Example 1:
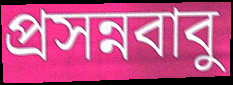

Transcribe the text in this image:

প্রসন্নবাবু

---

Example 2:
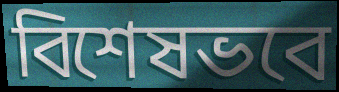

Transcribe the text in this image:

বিশেষভবে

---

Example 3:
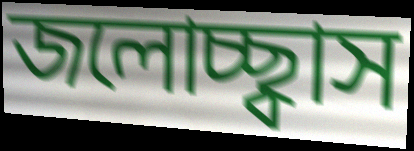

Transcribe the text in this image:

জলোচ্ছ্বাস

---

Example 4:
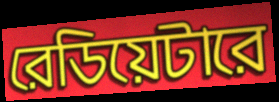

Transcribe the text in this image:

রেডিয়েটারে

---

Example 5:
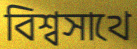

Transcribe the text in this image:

বিশ্বসাথে